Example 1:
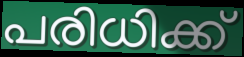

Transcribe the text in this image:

പരിധിക്ക്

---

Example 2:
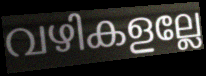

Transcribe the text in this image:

വഴികളല്ലേ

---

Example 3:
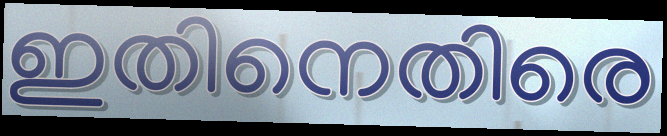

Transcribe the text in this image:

ഇതിനെതിരെ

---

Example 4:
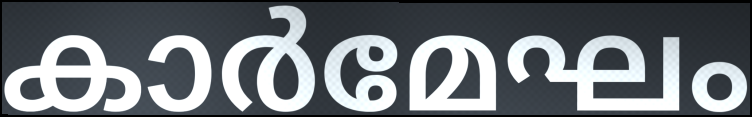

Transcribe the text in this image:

കാർമേഘം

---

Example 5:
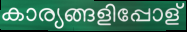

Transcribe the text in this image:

കാര്യങ്ങളിപ്പോള്